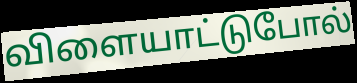
விளையாட்டுபோல்